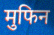
मुफिन